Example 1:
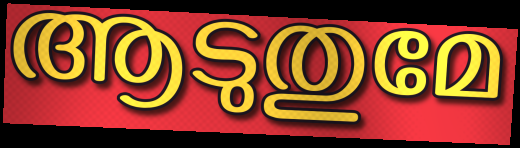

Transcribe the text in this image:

ആടുതുമേ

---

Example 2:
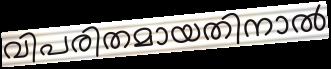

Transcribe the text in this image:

വിപരിതമായതിനാൽ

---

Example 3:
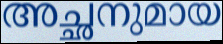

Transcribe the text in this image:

അച്ഛനുമായ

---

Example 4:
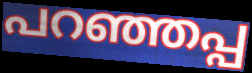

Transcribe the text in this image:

പറഞ്ഞപ്പ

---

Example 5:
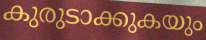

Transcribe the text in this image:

കുരുടാക്കുകയും